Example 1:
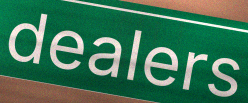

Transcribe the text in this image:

dealers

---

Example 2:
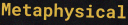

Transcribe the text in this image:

Metaphysical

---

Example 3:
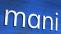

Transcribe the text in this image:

mani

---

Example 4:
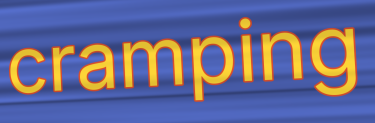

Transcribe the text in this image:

cramping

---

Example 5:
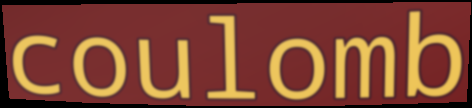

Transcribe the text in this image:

coulomb